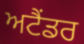
ਅਟੈਂਡਰ